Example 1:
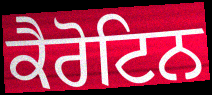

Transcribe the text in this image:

ਕੈਰੋਟਿਨ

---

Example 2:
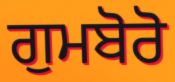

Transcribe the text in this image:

ਗੁਮਬੋਰੋ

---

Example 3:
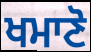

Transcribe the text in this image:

ਖਮਾਣੋ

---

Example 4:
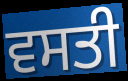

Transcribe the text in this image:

ਵਸਤੀ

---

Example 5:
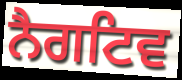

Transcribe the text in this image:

ਨੈਗਟਿਵ